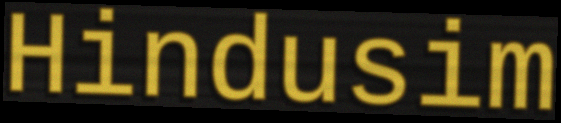
Hindusim